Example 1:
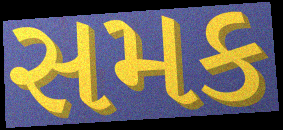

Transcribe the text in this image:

સમક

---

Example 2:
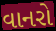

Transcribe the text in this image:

વાનરો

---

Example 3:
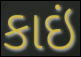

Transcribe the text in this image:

કાઇં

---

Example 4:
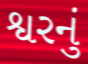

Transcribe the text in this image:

શ્વરનું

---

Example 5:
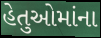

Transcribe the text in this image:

હેતુઓમાંના